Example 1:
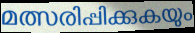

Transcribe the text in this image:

മത്സരിപ്പിക്കുകയും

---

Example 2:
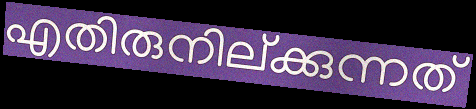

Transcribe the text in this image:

എതിരുനില്ക്കുന്നത്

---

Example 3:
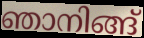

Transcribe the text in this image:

ഞാനിങ്ങ്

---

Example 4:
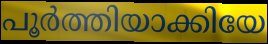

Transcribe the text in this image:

പൂർത്തിയാക്കിയേ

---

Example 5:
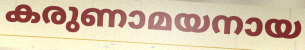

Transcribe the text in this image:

കരുണാമയനായ